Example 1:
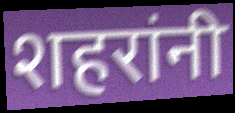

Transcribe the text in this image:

शहरांनी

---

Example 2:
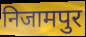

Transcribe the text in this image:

निजामपुर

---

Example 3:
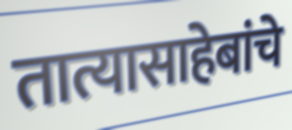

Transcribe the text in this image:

तात्यासाहेबांचे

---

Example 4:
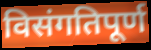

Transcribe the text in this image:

विसंगतिपूर्ण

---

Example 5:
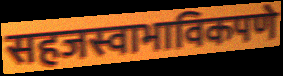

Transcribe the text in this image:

सहजस्वाभाविकपणे